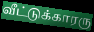
வீட்டுக்காரரு